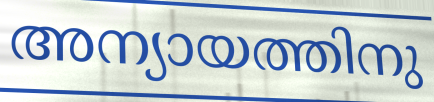
അന്യായത്തിനു